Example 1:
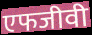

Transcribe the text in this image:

एफजीवी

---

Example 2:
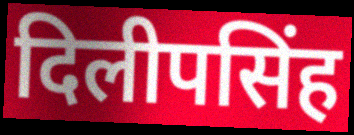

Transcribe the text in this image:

दिलीपसिंह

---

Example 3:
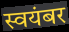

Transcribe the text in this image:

स्वयंबर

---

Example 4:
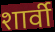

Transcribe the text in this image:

शार्वी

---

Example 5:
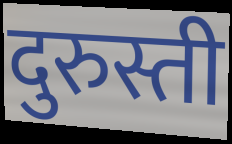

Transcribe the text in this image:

दुरुस्ती